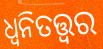
ଧ୍ଵନିତତ୍ତ୍ଵର